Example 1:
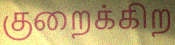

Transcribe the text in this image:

குறைக்கிற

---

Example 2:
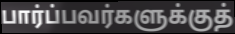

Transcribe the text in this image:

பார்ப்பவர்களுக்குத்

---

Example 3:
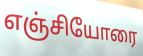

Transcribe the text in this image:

எஞ்சியோரை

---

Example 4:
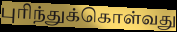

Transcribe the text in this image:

புரிந்துக்கொள்வது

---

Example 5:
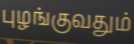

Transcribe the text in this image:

புழங்குவதும்